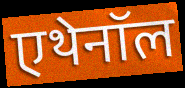
एथेनॉल